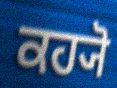
ਕਹ੍ਯੋ